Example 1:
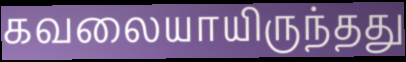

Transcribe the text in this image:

கவலையாயிருந்தது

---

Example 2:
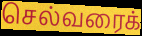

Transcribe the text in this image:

செல்வரைக்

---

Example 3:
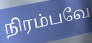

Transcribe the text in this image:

நிரம்பவே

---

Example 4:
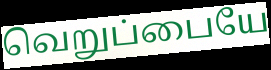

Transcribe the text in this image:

வெறுப்பையே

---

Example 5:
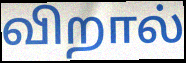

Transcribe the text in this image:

விறால்